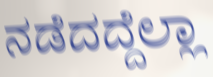
ನಡೆದದ್ದೆಲ್ಲಾ